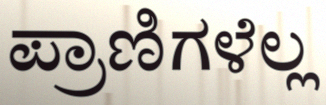
ಪ್ರಾಣಿಗಳೆಲ್ಲ